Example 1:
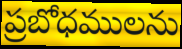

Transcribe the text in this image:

ప్రబోధములను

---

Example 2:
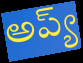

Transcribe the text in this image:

అప్య్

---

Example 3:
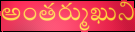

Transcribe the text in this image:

అంతర్ముఖుని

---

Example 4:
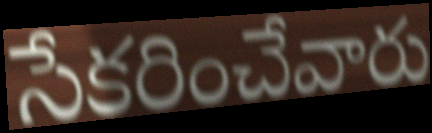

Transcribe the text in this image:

సేకరించేవారు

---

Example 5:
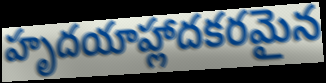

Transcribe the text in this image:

హృదయాహ్లాదకరమైన